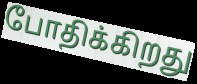
போதிக்கிறது